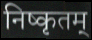
निष्कृतम्